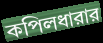
কপিলধারার